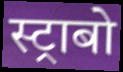
स्ट्राबो